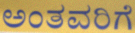
ಅಂತವರಿಗೆ